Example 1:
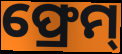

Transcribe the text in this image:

ଫ୍ରେମ୍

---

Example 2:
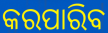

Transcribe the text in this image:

କରପାରିବ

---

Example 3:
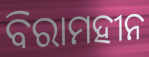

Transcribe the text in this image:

ବିରାମହୀନ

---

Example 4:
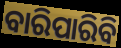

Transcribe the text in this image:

ବାରିପାରିବି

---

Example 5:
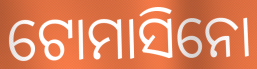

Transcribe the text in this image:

ଟୋମାସିନୋ